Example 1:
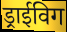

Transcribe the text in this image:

ड्राईविग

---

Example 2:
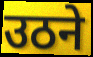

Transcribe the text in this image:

उठने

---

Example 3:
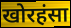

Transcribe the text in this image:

खोरहंसा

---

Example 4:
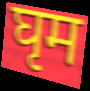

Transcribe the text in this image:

घृम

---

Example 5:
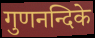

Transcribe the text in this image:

गुणनन्दिके